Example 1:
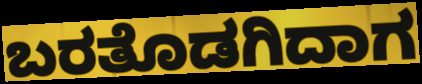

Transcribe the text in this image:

ಬರತೊಡಗಿದಾಗ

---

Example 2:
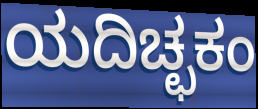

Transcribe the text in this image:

ಯದಿಚ್ಛಕಂ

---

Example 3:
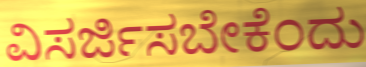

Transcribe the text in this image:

ವಿಸರ್ಜಿಸಬೇಕೆಂದು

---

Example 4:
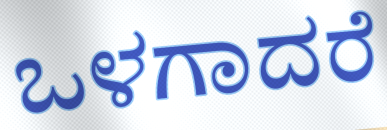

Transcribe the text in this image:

ಒಳಗಾದರೆ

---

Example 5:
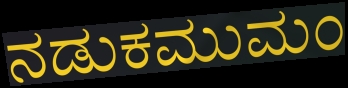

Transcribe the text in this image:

ನಡುಕಮುಮಂ